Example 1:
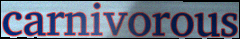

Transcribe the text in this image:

carnivorous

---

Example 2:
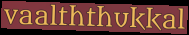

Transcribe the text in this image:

vaalththukkal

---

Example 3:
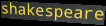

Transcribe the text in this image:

shakespeare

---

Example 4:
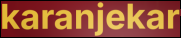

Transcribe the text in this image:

karanjekar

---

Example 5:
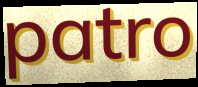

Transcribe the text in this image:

patro